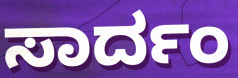
ಸಾರ್ದಂ